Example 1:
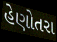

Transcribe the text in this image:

હેણોતરા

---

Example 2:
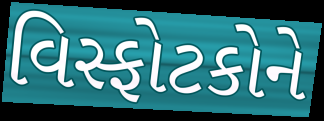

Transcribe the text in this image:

વિસ્ફોટકોને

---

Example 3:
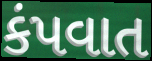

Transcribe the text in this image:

કંપવાત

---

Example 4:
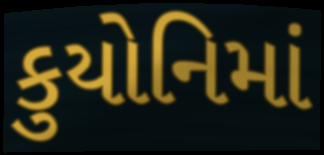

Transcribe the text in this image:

કુયોનિમાં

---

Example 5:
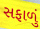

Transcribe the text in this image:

સફાળું